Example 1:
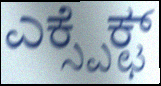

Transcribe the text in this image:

ಎಕ್ಸ್ಪೆಕ್ಟ್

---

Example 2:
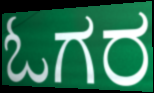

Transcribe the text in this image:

ಓಗರ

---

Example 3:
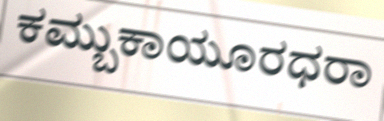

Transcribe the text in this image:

ಕಮ್ಬುಕಾಯೂರಧರಾ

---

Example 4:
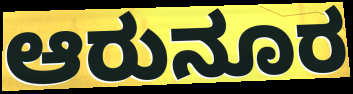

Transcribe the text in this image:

ಆರುನೂರ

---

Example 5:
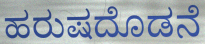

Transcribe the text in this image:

ಹರುಷದೊಡನೆ